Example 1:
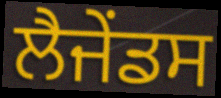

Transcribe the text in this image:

ਲੈਜੇਂਡਸ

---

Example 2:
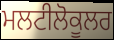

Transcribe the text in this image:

ਮਲਟੀਲੋਕੂਲਰ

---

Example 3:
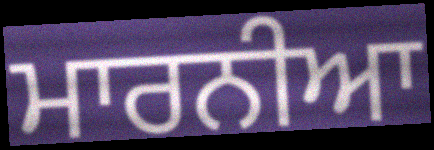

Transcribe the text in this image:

ਮਾਰਨੀਆ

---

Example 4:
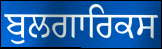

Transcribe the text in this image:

ਬੁਲਗਾਰਿਕਸ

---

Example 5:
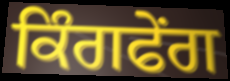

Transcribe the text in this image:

ਕਿੰਗਫੇਂਗ